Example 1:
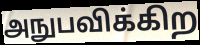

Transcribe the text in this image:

அநுபவிக்கிற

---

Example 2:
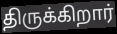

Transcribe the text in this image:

திருக்கிறார்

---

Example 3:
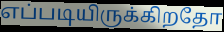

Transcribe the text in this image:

எப்படியிருக்கிறதோ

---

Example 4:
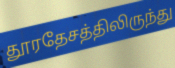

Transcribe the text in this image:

தூரதேசத்திலிருந்து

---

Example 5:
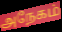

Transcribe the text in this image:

அநேகம்